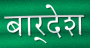
बार्देश